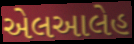
એલઆલેહ